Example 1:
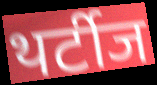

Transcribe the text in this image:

थर्टीज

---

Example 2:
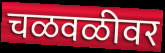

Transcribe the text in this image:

चळवळीवर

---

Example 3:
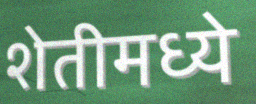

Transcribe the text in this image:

शेतीमध्ये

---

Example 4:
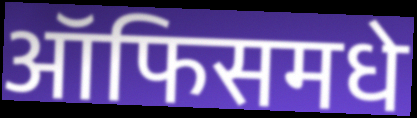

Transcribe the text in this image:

ऑफिसमधे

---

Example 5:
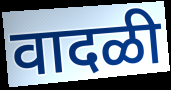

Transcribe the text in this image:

वादळी